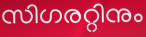
സിഗരറ്റിനും